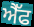
ਐੈੱਫ